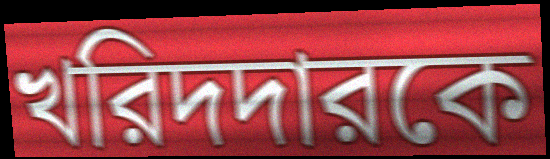
খরিদদারকে